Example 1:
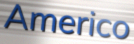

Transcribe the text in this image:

Americo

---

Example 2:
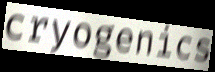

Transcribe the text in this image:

cryogenics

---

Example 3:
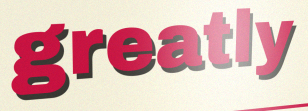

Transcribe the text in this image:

greatly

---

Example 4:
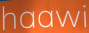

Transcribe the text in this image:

haawi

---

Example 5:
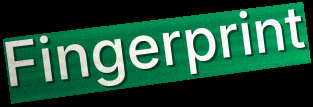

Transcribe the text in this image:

Fingerprint